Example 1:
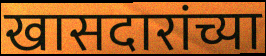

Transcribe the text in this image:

खासदारांच्या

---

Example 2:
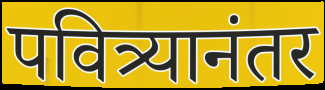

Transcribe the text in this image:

पवित्र्यानंतर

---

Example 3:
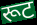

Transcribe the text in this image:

रूट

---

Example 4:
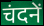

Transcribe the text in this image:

चंदनें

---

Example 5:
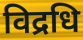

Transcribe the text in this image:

विद्रधि